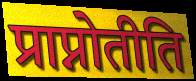
प्राप्नोतीति